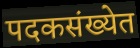
पदकसंख्येत